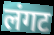
लंगट